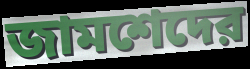
জামশেদের